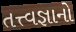
તત્ત્વજ્ઞાનો